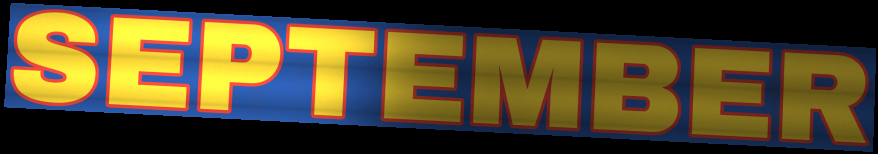
SEPTEMBER